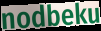
nodbeku